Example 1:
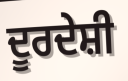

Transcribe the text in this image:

ਦੂਰਦੇਸ਼ੀ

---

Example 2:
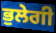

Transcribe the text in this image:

ਭੁਲੇਗੀ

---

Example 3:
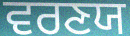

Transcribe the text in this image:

ਵਰਣਯ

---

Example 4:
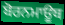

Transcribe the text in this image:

ਬੋਰਨਮਾਊਥ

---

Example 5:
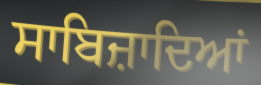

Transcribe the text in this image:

ਸਾਬਿਜ਼ਾਦਿਆਂ